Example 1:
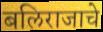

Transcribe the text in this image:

बलिराजाचे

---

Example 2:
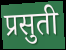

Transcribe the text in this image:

प्रसुती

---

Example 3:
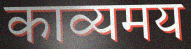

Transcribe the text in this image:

काव्यमय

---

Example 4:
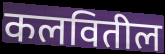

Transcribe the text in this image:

कलवितील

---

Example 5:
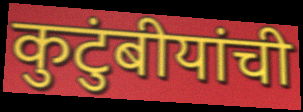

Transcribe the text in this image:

कुटुंबीयांची